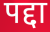
पद्दा